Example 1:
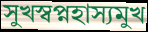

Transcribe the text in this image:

সুখস্বপ্নহাস্যমুখ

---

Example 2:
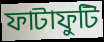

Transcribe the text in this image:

ফাটাফুটি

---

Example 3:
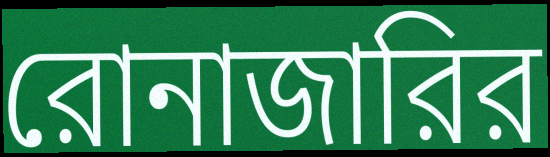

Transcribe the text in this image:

রোনাজারির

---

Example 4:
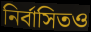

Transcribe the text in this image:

নির্বাসিতও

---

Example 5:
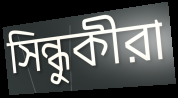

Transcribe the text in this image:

সিন্ধুকীরা